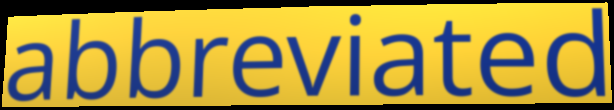
abbreviated